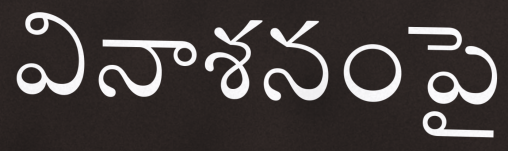
వినాశనంపై